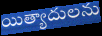
యిత్యాదులను